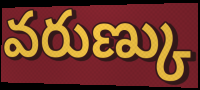
వరుణ్కు